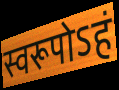
स्वरूपोऽहं